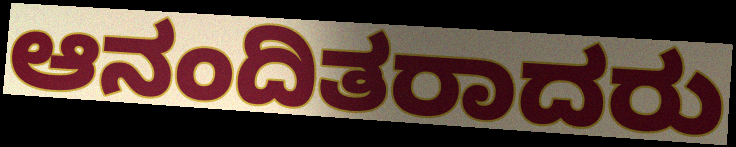
ಆನಂದಿತರಾದರು